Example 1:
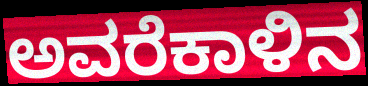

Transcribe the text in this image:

ಅವರೆಕಾಳಿನ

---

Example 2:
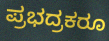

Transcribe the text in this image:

ಪ್ರಭದ್ರಕರೂ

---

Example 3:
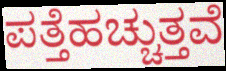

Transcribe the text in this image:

ಪತ್ತೆಹಚ್ಚುತ್ತವೆ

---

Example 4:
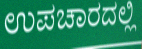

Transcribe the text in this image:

ಉಪಚಾರದಲ್ಲಿ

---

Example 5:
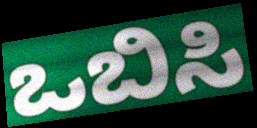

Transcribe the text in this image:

ಒಬಿಸಿ